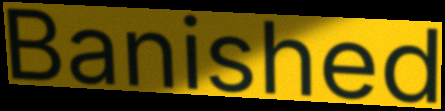
Banished